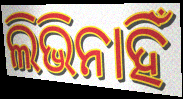
ଲିଭିନାହିଁ